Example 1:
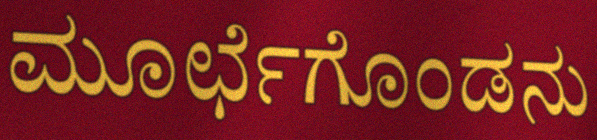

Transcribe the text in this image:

ಮೂರ್ಛೆಗೊಂಡನು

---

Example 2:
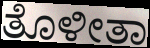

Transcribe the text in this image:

ತೊಳೀತಾ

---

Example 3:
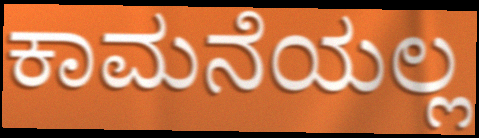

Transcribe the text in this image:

ಕಾಮನೆಯಲ್ಲ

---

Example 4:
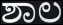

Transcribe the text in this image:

ಶಾಲ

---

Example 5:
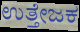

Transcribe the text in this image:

ಉತ್ತೇಜಕ